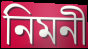
নিমনী